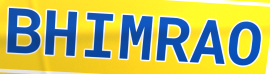
BHIMRAO